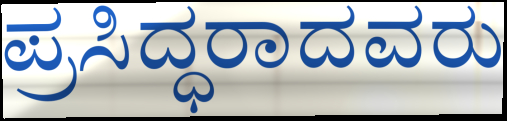
ಪ್ರಸಿದ್ಧರಾದವರು